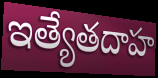
ఇత్యేతదాహ